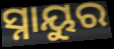
ସ୍ନାୟୁର